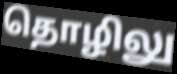
தொழிலு